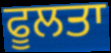
ਫੂਲਤਾ